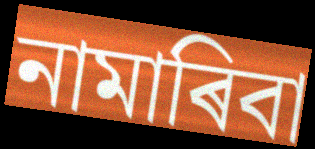
নামাৰিবা